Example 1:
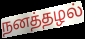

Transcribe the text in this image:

நனத்தழல்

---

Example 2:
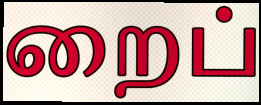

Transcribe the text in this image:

றைப்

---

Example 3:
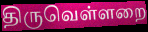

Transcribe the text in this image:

திருவெள்ளறை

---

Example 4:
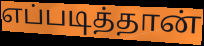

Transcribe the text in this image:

எப்படித்தான்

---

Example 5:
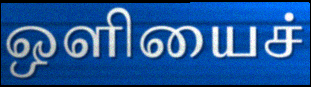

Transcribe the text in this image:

ஒளியைச்